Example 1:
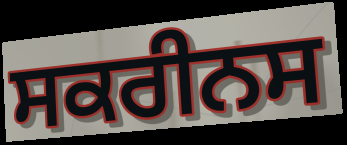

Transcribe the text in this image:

ਸਕਰੀਨਸ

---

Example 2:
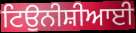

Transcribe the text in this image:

ਟਿਉਨੀਸ਼ੀਆਈ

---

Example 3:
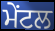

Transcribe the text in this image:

ਮੇਂਟਲ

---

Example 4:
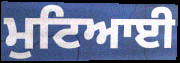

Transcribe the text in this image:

ਮੁਟਿਆਈ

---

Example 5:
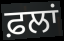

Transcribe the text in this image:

ਫ਼ਲਾਂ